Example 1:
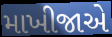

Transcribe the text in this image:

માખીજાએ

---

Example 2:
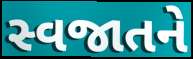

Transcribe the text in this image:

સ્વજાતને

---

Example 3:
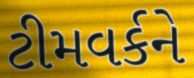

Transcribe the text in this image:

ટીમવર્કને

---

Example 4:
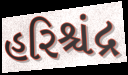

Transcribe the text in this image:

હરિશ્ચંદ્ર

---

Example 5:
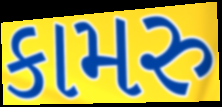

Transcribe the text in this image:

કામરુ